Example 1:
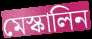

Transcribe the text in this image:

মেস্কালিন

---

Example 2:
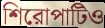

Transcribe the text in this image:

শিরোপাটিও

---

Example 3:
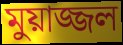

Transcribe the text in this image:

মুয়াজ্জল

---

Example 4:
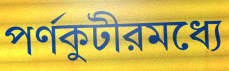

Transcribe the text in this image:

পর্ণকুটীরমধ্যে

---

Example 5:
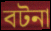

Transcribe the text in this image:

বটনা